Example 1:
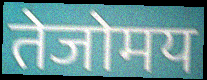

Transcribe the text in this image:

तेजोमय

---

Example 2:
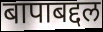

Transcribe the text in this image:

बापाबद्दल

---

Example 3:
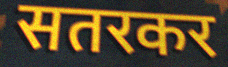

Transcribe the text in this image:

सतरकर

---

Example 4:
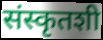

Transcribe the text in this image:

संस्कृतशी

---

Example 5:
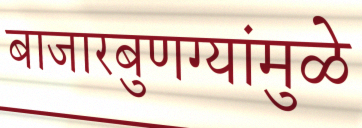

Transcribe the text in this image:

बाजारबुणग्यांमुळे